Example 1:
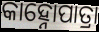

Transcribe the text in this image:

କାହ୍ନୋପାତ୍ରା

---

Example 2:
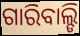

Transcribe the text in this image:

ଗାରିବାଲ୍ଡି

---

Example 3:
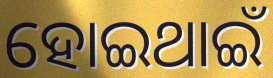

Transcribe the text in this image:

ହୋଇଥାଇଁ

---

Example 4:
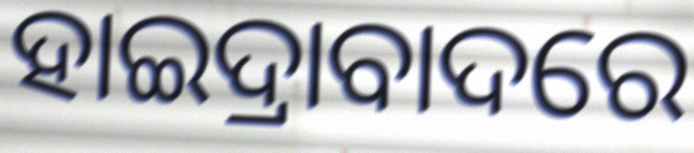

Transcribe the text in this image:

ହାଇଦ୍ରାବାଦରେ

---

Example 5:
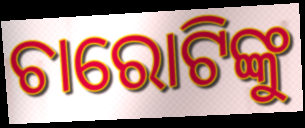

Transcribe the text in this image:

ଚାରୋଟିଙ୍କୁ